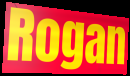
Rogan